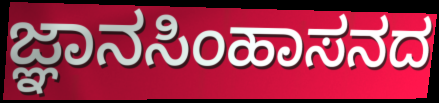
ಜ್ಞಾನಸಿಂಹಾಸನದ